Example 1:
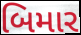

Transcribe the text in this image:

બિમાર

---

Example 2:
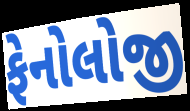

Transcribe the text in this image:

ફેનોલોજી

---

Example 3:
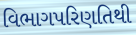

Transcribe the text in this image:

વિભાગપરિણતિથી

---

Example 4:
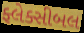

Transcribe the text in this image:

ફ્લેક્સીબલ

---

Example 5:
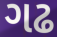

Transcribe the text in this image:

ગઢ